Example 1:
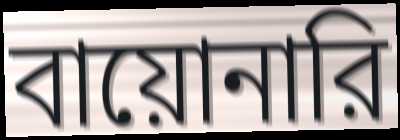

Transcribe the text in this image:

বায়োনারি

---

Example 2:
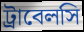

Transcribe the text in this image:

ট্রাবেলসি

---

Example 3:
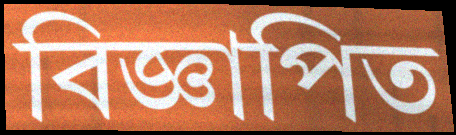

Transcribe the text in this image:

বিজ্ঞাপিত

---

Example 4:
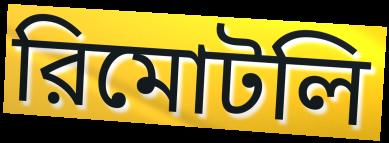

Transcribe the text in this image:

রিমোটলি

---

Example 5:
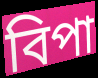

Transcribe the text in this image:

বিপা